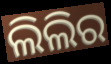
ଲିଲିର